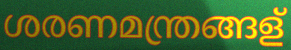
ശരണമന്ത്രങ്ങള്